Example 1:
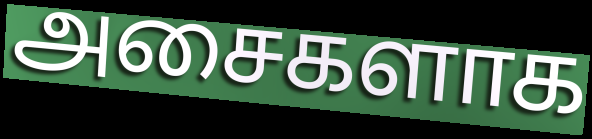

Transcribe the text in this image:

அசைகளாக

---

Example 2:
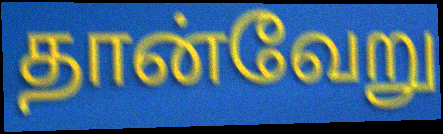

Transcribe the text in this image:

தான்வேறு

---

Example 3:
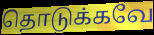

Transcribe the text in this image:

தொடுக்கவே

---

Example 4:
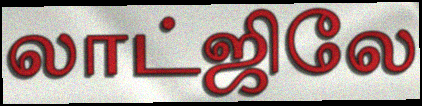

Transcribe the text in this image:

லாட்ஜிலே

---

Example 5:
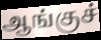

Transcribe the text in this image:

ஆங்குச்